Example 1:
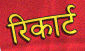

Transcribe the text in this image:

रिकार्ट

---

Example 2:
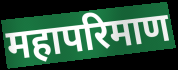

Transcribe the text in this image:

महापरिमाण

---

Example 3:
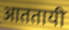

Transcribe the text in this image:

आततायी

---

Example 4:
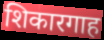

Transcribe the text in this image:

शिकारगाह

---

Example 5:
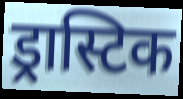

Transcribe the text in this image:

ड्रास्टिक